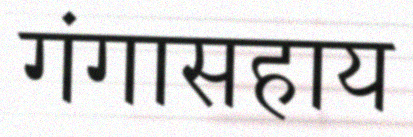
गंगासहाय